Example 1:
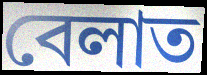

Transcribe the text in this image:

বেলাত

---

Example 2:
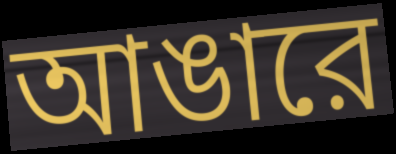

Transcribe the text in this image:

আঙারে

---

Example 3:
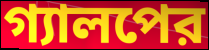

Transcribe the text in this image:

গ্যালপের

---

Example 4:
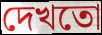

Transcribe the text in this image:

দেখতো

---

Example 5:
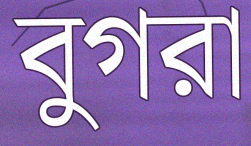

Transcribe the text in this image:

বুগরা